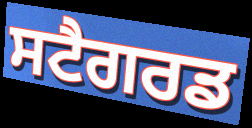
ਸਟੈਗਰਡ